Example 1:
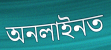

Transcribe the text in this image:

অনলাইনত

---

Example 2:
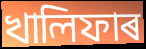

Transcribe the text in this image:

খালিফাৰ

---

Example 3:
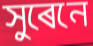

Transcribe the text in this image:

সুৰেনে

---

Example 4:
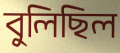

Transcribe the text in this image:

বুলিছিল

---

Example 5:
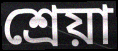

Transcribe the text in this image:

শ্ৰেয়া